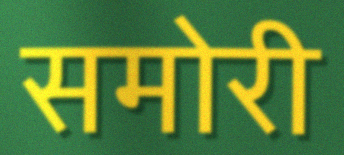
समोरी